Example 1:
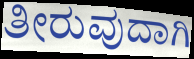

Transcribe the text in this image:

ತೀರುವುದಾಗಿ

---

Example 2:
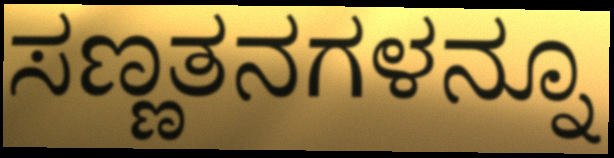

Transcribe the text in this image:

ಸಣ್ಣತನಗಳನ್ನೂ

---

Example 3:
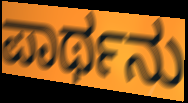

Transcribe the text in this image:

ಪಾರ್ಥನು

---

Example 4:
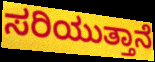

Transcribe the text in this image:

ಸರಿಯುತ್ತಾನೆ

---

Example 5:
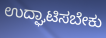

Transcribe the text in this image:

ಉದ್ಘಾಟಿಸಬೇಕು